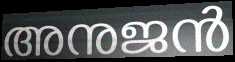
അനുജൻ